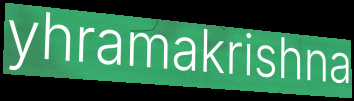
yhramakrishna